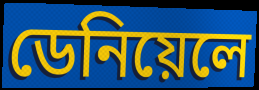
ডেনিয়েলে